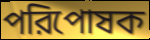
পরিপোষক